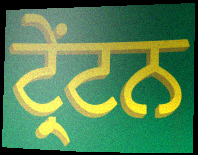
ਟ੍ਰੇਂਟਨ